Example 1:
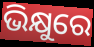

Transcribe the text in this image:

ଭିକ୍ଷୁରେ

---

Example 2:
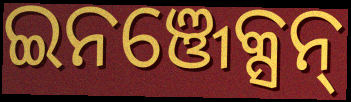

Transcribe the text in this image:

ଇନଞ୍ଜେକ୍ସନ୍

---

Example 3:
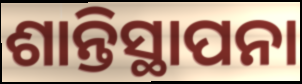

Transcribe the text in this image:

ଶାନ୍ତିସ୍ଥାପନା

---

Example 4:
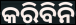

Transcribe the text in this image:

କରିବିନି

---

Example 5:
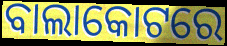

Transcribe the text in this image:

ବାଲାକୋଟରେ